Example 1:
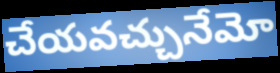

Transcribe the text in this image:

చేయవచ్చునేమో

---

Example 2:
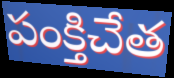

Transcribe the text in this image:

పంక్తిచేత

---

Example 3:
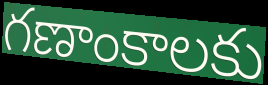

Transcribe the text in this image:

గణాంకాలకు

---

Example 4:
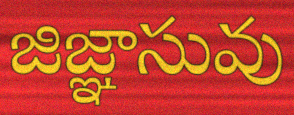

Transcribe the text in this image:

జిజ్ఞాసువు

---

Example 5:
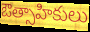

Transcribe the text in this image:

ఔత్సాహికులు